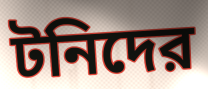
টনিদের